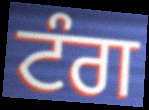
ਟੰਗ